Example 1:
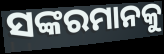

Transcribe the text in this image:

ସଙ୍କରମାନକୁ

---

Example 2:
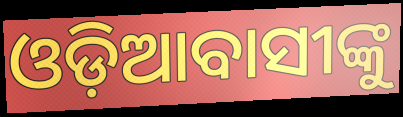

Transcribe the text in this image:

ଓଡ଼ିଆବାସୀଙ୍କୁ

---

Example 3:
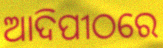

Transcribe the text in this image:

ଆଦିପୀଠରେ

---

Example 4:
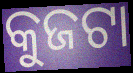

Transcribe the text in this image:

କୁଜଟା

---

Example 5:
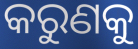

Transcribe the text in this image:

କରୁଣକୁ